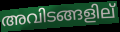
അവിടങ്ങളില്